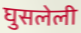
घुसलेली